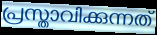
പ്രസ്താവിക്കുന്നത്